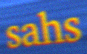
sahs